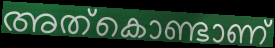
അത്കൊണ്ടാണ്